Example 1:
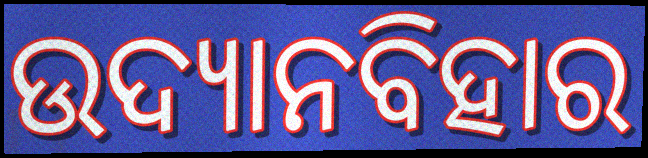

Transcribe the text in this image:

ଉଦ୍ୟାନବିହାର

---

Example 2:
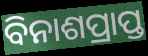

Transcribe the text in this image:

ବିନାଶପ୍ରାପ୍ତ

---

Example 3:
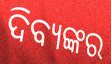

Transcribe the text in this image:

ଦିବ୍ୟଙ୍କର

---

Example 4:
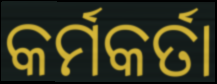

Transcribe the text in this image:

କର୍ମକର୍ତା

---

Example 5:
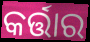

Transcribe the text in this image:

କର୍ତ୍ତାର